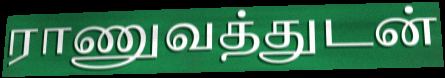
ராணுவத்துடன்